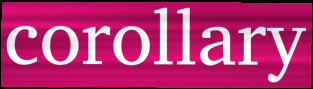
corollary